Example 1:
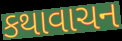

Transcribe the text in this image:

કથાવાચન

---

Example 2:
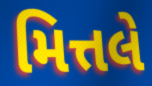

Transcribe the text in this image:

મિત્તલે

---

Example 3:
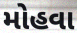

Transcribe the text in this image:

મોહવા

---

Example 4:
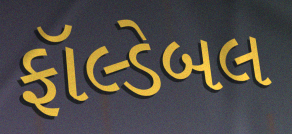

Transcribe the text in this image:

ફૉલ્ડેબલ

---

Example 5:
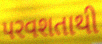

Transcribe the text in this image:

પરવશતાથી